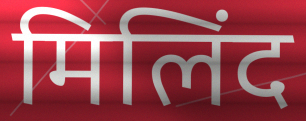
मिलिंद